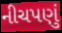
નીચપણું